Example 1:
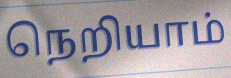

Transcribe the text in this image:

நெறியாம்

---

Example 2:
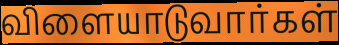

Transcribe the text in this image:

விளையாடுவார்கள்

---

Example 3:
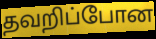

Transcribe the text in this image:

தவறிப்போன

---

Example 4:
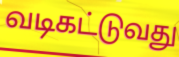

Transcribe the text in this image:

வடிகட்டுவது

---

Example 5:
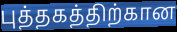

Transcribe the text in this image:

புத்தகத்திற்கான